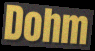
Dohm